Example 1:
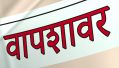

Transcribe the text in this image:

वापशावर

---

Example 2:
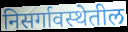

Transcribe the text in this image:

निसर्गावस्थेतील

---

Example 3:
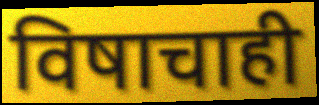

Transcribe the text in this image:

विषाचाही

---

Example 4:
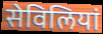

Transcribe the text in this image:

सेविलियां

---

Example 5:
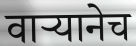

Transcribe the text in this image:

वाऱ्यानेच